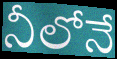
నీలోనే